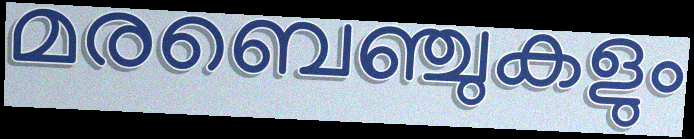
മരബെഞ്ചുകളും